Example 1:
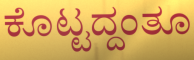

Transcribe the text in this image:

ಕೊಟ್ಟದ್ದಂತೂ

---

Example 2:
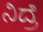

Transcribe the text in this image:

ನಿದ್ರೆ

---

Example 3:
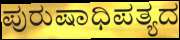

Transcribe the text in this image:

ಪುರುಷಾಧಿಪತ್ಯದ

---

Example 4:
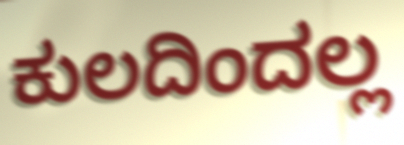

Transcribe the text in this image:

ಕುಲದಿಂದಲ್ಲ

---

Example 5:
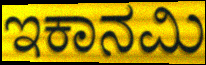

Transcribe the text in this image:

ಇಕಾನಮಿ